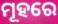
ମୂହରେ